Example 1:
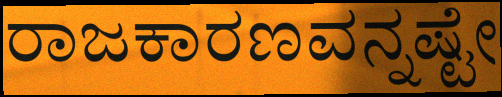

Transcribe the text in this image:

ರಾಜಕಾರಣವನ್ನಷ್ಟೇ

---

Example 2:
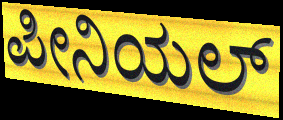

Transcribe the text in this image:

ಪೀನಿಯಲ್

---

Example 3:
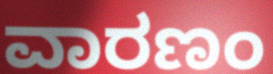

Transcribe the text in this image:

ವಾರಣಂ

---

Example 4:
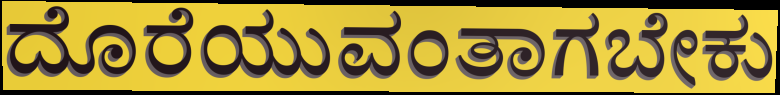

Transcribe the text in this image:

ದೊರೆಯುವಂತಾಗಬೇಕು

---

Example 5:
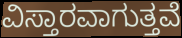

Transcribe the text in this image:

ವಿಸ್ತಾರವಾಗುತ್ತವೆ